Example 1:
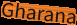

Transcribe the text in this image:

Gharana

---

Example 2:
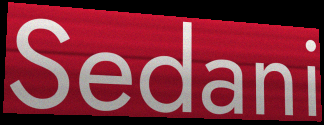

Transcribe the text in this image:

Sedani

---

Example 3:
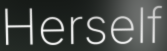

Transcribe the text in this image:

Herself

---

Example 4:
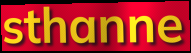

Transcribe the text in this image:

sthanne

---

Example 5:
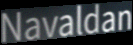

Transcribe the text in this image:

Navaldan